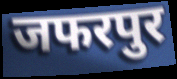
जफरपुर